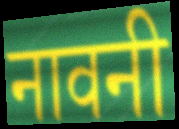
नावनी